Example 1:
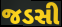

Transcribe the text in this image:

જડસી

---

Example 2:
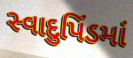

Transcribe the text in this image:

સ્વાદુપિંડમાં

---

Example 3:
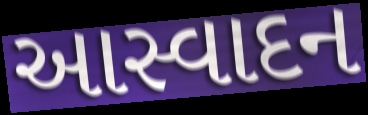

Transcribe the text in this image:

આસ્વાદન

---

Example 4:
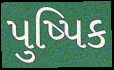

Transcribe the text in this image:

પુષ્પિક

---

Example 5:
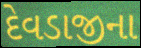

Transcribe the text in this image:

દેવડાજીના